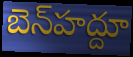
బెన్‍హద్దూ